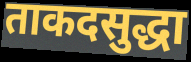
ताकदसुद्धा